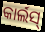
କାର୍ଲସ୍